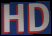
HD